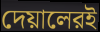
দেয়ালেরই